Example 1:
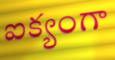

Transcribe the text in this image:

ఐక్యంగా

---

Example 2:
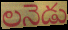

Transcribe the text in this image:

లనెడు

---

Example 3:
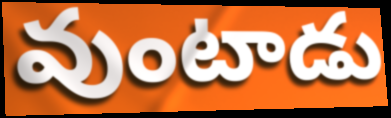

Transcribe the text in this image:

వుంటాడు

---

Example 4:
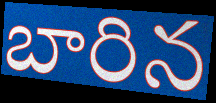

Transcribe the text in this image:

బారిన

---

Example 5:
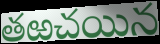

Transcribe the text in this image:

తఱచయిన